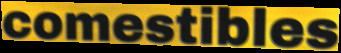
comestibles